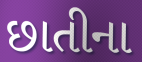
છાતીના